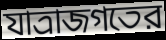
যাত্রাজগতের